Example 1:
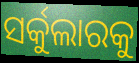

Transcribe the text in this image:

ସର୍କୁଲାରକୁ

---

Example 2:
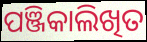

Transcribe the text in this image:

ପଞ୍ଜିକାଲିଖିତ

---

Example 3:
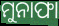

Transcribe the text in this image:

ମୁନାଫା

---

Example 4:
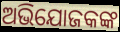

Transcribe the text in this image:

ଅଭିଯୋଜକଙ୍କ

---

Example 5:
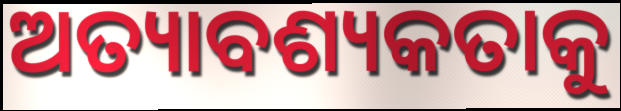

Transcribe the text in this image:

ଅତ୍ୟାବଶ୍ୟକତାକୁ